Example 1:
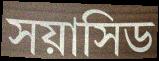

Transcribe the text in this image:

সয়াসিড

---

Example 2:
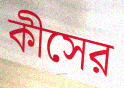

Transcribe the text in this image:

কীসের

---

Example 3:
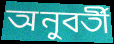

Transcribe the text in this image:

অনুবর্তী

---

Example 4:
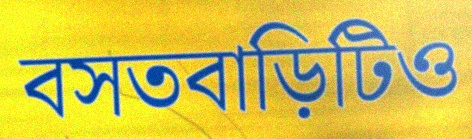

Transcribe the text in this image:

বসতবাড়িটিও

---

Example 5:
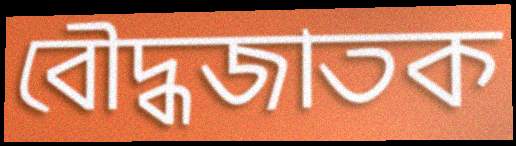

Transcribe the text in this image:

বৌদ্ধজাতক